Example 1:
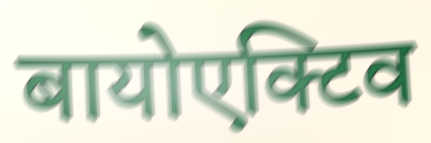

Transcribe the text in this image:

बायोएक्टिव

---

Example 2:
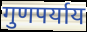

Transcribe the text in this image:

गुणपर्याय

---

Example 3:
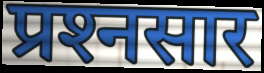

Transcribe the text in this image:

प्रश्‍नसार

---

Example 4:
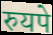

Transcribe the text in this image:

रुयपे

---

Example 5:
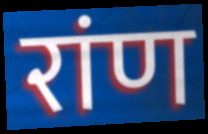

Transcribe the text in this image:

रांण